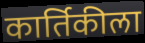
कार्तिकीला